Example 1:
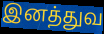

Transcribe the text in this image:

இனத்துவ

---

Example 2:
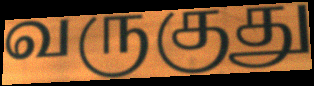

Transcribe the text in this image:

வருகுது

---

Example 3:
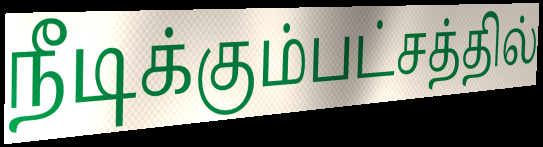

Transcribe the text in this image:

நீடிக்கும்பட்சத்தில்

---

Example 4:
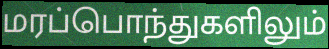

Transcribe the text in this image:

மரப்பொந்துகளிலும்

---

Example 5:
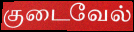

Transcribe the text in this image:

குடைவேல்